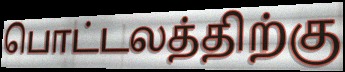
பொட்டலத்திற்கு